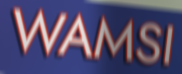
WAMSI